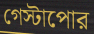
গেস্টাপোর